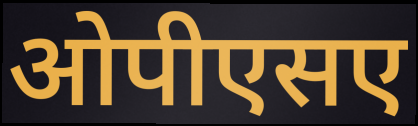
ओपीएसए